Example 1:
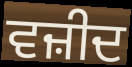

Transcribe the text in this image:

ਵਜ਼ੀਦ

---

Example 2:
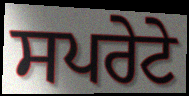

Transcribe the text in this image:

ਸਪਰੇਟੇ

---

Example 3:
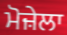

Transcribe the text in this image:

ਮੋਜ਼ੇਲਾ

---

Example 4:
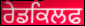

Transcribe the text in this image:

ਰੇਡਕਿਲਫ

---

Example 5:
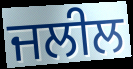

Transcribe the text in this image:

ਜਲੀਲ